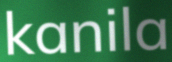
kanila